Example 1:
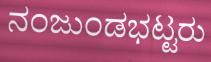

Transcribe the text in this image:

ನಂಜುಂಡಭಟ್ಟರು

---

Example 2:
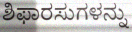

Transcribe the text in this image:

ಶಿಫಾರಸುಗಳನ್ನು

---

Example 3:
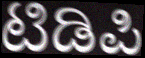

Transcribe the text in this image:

ಟಿಡಿಪಿ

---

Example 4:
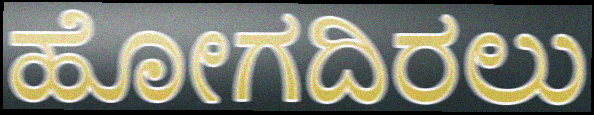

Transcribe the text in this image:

ಹೋಗದಿರಲು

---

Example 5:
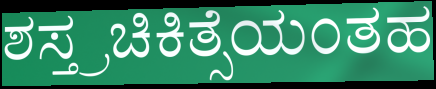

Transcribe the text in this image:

ಶಸ್ತ್ರಚಿಕಿತ್ಸೆಯಂತಹ